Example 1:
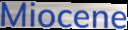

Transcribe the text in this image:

Miocene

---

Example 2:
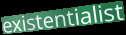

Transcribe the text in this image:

existentialist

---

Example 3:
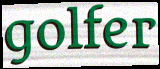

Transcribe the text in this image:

golfer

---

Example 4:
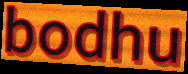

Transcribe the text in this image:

bodhu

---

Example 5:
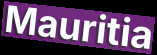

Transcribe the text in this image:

Mauritia